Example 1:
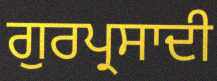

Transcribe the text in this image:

ਗੁਰਪ੍ਰਸਾਦੀ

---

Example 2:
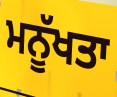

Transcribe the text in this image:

ਮਨੂੱਖਤਾ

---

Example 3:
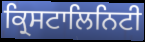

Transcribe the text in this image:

ਕ੍ਰਿਸਟਾਲਿਨਿਟੀ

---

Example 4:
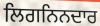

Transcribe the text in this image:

ਲਿਗਨਿਨਦਾਰ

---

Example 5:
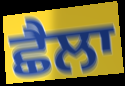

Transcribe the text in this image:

ਛੈਲਾ